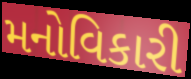
મનોવિકારી